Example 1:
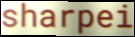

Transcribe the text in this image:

sharpei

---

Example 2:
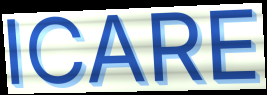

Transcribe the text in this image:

ICARE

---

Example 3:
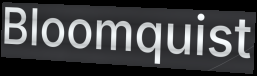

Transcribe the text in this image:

Bloomquist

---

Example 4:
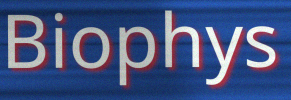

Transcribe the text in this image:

Biophys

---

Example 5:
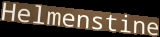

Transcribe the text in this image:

Helmenstine